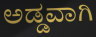
ಅಡ್ಡವಾಗಿ